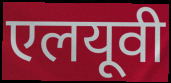
एलयूवी